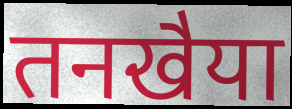
तनखैया